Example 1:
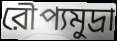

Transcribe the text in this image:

রৌপ্যমুদ্রা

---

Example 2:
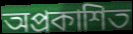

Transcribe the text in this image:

অপ্রকাশিত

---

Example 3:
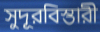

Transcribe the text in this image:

সুদূরবিস্তারী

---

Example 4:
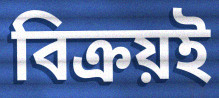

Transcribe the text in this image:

বিক্রয়ই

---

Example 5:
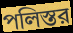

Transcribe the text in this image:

পলিস্তর